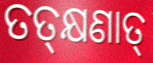
ତତ୍କ୍ଷଣାତ୍